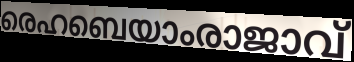
രെഹബെയാംരാജാവ്